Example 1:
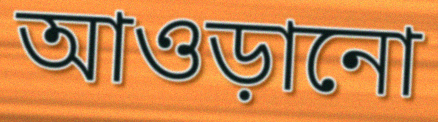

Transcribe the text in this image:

আওড়ানো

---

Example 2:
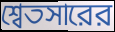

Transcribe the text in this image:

শ্বেতসারের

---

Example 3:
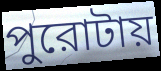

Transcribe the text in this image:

পুরোটায়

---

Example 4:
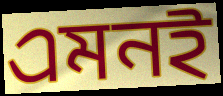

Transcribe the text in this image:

এমনই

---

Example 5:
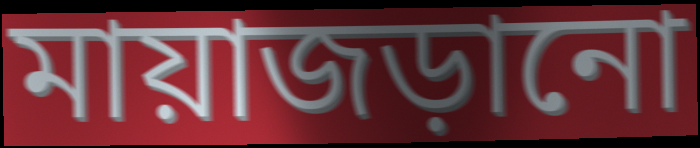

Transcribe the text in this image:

মায়াজড়ানো